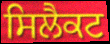
ਸਿਲੈਕਟ